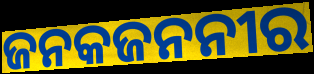
ଜନକଜନନୀର